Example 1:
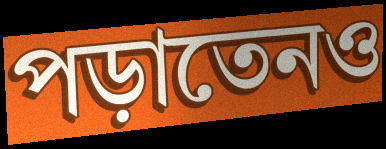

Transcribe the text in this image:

পড়াতেনও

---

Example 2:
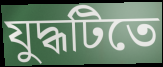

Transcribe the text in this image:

যুদ্ধটিতে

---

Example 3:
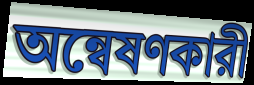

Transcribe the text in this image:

অন্বেষণকারী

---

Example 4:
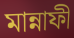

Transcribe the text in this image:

মান্নাফী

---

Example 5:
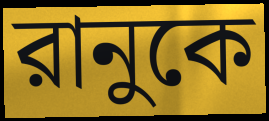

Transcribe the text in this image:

রানুকে